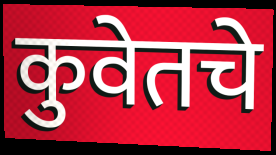
कुवेतचे